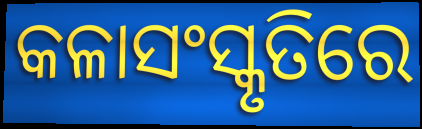
କଳାସଂସ୍କୃତିରେ